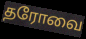
தரோவை